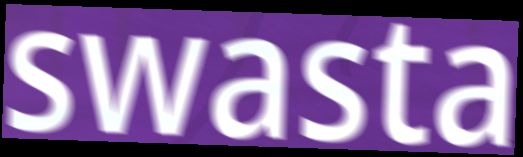
swasta